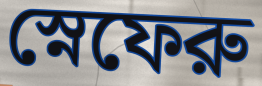
স্নেফেরু